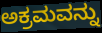
ಅಕ್ರಮವನ್ನು